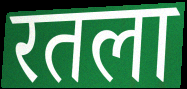
रतला